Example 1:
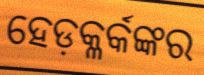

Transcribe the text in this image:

ହେଡ଼କ୍ଳର୍କଙ୍କର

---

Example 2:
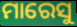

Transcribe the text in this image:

ମାରେସୁ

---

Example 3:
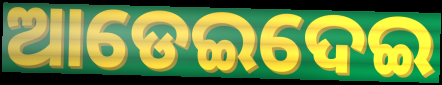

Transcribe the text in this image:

ଆଡେଇଦେଇ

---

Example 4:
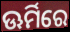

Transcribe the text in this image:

ଊର୍ମିରେ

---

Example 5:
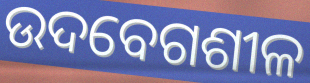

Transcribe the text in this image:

ଉଦବେଗଶୀଳ